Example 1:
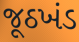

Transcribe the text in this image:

જૂઠખંડ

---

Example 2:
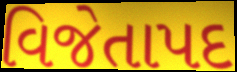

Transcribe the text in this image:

વિજેતાપદ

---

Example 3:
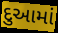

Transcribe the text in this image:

દુઆમાં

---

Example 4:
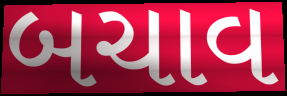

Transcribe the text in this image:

બચાવ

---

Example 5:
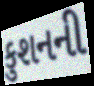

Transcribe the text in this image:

કુશનની